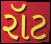
રૉટ